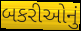
બકરીઓનું